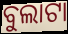
ବୁଲାଟା